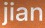
jian